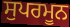
ਸੁਪਰਮੂਨ